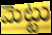
మెట్టు